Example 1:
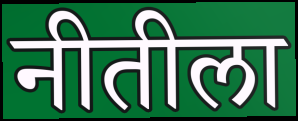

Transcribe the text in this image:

नीतीला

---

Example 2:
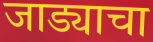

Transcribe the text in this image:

जाड्याचा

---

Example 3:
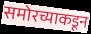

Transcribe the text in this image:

समोरच्याकडून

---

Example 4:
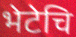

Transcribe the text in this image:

भेटेचि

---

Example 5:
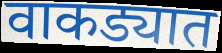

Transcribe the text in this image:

वाकड्यात